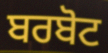
ਬਰਬੋਟ